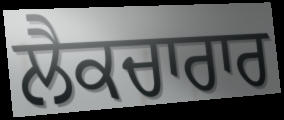
ਲੈਕਚਾਰਾਰ